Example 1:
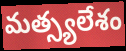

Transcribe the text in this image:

మత్స్యలేశం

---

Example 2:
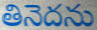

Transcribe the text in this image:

తినెదను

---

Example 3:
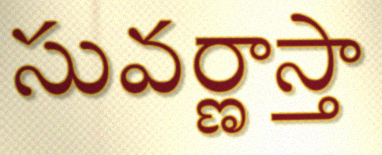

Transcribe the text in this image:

సువర్ణాస్తా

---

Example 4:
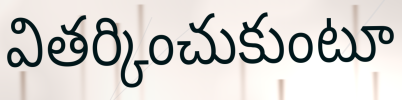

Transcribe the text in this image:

వితర్కించుకుంటూ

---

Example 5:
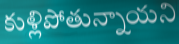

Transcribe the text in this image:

కుళ్లిపోతున్నాయని